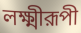
লক্ষ্মীরূপী